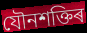
যৌনশক্তিৰ